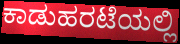
ಕಾಡುಹರಟೆಯಲ್ಲಿ